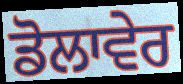
ਡੋਲਾਵੇਰ